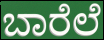
ಬಾರೆಲೆ